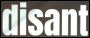
disant